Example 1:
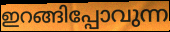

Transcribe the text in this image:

ഇറങ്ങിപ്പോവുന്ന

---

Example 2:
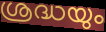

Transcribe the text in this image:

ശ്രദ്ധയും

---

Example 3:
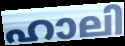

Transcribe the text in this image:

ഹാലി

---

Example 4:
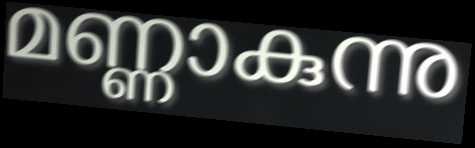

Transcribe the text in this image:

മണ്ണാകുന്നു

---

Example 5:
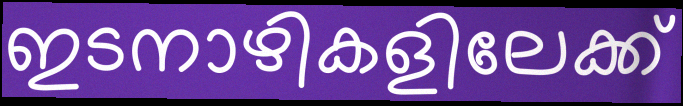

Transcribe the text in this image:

ഇടനാഴികളിലേക്ക്